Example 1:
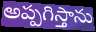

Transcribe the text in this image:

అప్పగిస్తాను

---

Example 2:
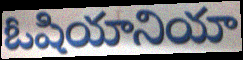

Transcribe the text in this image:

ఓషియానియా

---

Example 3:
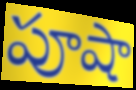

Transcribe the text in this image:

పూషా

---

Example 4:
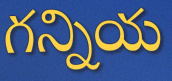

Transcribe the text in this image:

గన్నియ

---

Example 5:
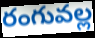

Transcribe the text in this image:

రంగువల్ల